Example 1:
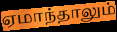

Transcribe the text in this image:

ஏமாந்தாலும்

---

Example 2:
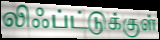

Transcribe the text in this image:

லிஃப்ட்டுக்குள்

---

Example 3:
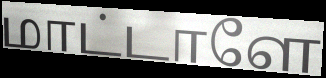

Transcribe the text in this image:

மாட்டாளே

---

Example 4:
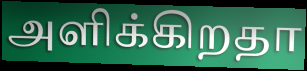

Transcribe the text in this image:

அளிக்கிறதா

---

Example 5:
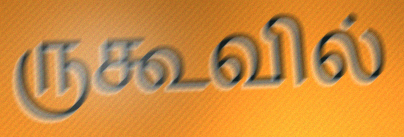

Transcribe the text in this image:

ருகூவில்